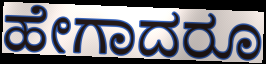
ಹೇಗಾದರೂ